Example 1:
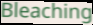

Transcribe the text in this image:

Bleaching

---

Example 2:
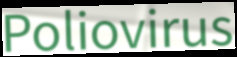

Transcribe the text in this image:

Poliovirus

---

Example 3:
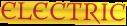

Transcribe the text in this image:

ELECTRIC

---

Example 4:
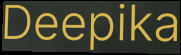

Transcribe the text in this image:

Deepika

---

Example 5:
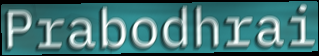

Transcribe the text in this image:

Prabodhrai